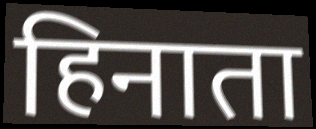
हिनाता